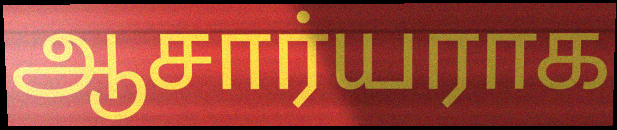
ஆசார்யராக